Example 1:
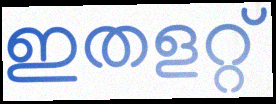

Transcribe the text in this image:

ഇതളറ്റ്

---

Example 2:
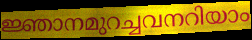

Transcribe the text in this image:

ജ്ഞാനമുറച്ചവനറിയാം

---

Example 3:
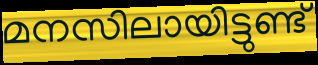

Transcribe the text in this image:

മനസിലായിട്ടുണ്ട്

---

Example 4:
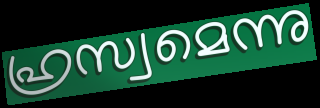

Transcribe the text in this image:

ഹ്രസ്വമെന്നു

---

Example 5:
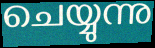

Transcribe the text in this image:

ചെയ്യുന്നു